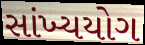
સાંખ્યયોગ